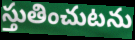
స్తుతించుటను